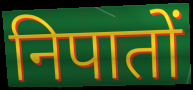
निपातों